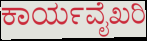
ಕಾರ್ಯವೈಖರಿ